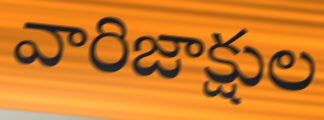
వారిజాక్షుల